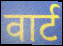
वार्ट